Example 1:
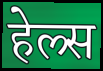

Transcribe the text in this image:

हेल्स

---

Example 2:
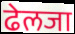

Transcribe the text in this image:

ढेलजा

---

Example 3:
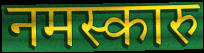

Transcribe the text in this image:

नमस्कारु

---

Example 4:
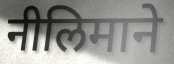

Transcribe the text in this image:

नीलिमाने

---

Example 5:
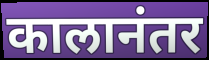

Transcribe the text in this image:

कालानंतर